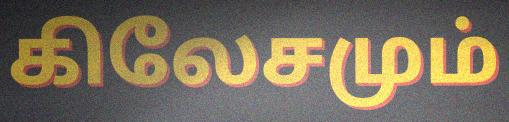
கிலேசமும்